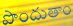
పొందుతాం